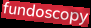
fundoscopy